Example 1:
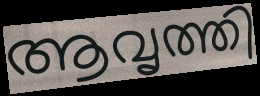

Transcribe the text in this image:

ആവൃത്തി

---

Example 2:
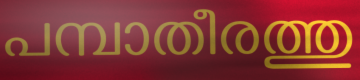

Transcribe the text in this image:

പമ്പാതീരത്തു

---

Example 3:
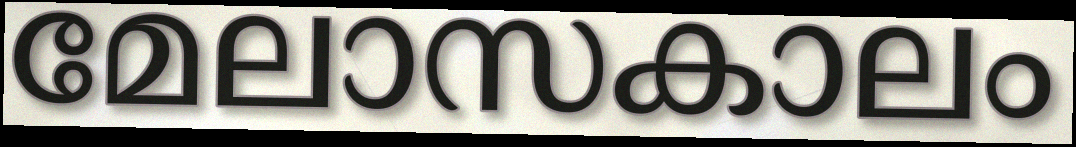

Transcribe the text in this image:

മേലാസകാലം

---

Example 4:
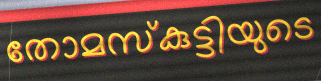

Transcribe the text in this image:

തോമസ്കുട്ടിയുടെ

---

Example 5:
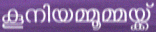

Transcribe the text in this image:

കൂനിയമ്മൂമ്മയ്ക്ക്